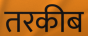
तरकीब